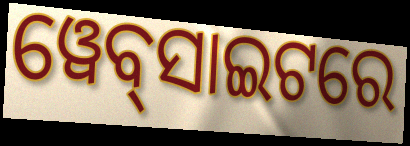
ୱେବ୍‍ସାଇଟରେ